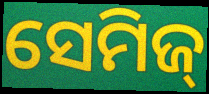
ସେମିଜ୍